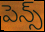
పెన్స్